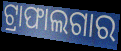
ଟ୍ରାଫାଲଗାର